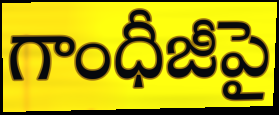
గాంధీజీపై